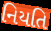
નિયતિ